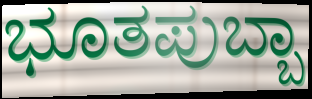
ಭೂತಪುಬ್ಬಾ